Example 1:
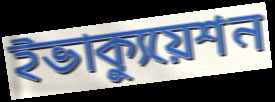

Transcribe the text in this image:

ইভাক্যুয়েশন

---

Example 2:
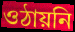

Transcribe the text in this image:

ওঠায়নি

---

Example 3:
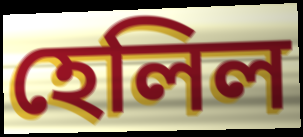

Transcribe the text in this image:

হেলিল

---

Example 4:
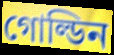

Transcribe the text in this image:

গোল্ডিন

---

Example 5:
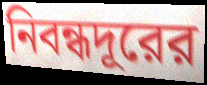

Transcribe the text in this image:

নিবন্ধদূরের